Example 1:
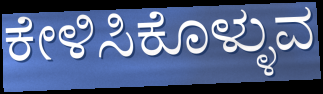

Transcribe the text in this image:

ಕೇಳಿಸಿಕೊಳ್ಳುವ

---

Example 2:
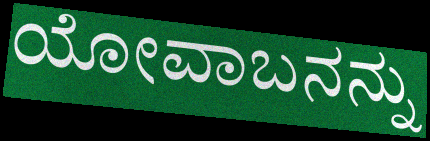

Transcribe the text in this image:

ಯೋವಾಬನನ್ನು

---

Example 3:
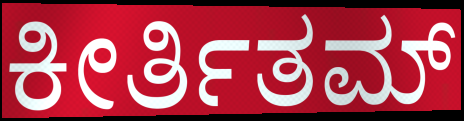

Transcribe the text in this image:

ಕೀರ್ತಿತಮ್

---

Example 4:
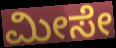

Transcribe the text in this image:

ಮೀಸೇ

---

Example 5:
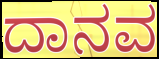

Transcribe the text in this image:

ದಾನವ